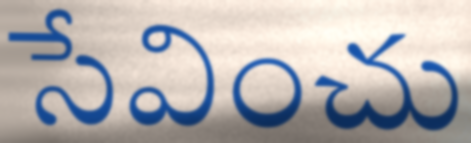
సేవించు